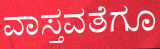
ವಾಸ್ತವತೆಗೂ